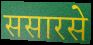
ससारसे